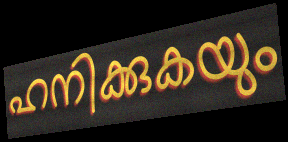
ഹനിക്കുകയും